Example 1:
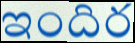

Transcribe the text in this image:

ఇందిర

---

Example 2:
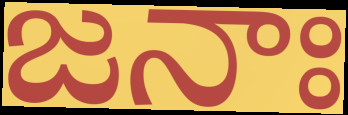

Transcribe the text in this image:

జనాః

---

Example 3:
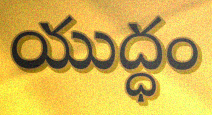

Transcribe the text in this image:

యుద్ధం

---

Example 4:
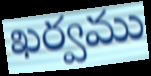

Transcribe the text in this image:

ఖర్వము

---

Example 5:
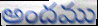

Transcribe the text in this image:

అందము